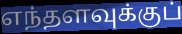
எந்தளவுக்குப்